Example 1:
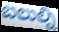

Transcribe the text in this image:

బలుల్ని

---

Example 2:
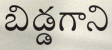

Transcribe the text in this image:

బిడ్డగాని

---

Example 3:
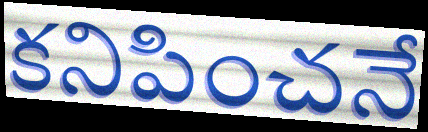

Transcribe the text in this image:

కనిపించనే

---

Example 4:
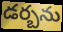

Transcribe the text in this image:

డర్బను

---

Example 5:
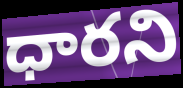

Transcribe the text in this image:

ధారని